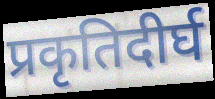
प्रकृतिदीर्घ